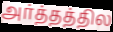
அர்த்தத்தில